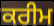
ਕਰੀਮ